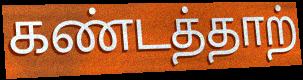
கண்டத்தாற்